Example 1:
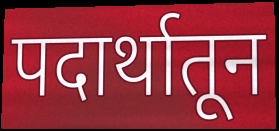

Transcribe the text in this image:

पदार्थातून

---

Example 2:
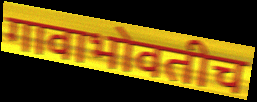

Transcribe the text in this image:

गावाभोवतीच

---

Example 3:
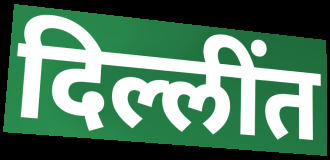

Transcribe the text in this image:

दिल्लींत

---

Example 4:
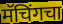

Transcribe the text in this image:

मॅचिंगचा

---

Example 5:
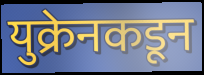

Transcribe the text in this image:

युक्रेनकडून